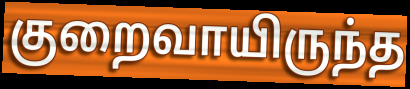
குறைவாயிருந்த